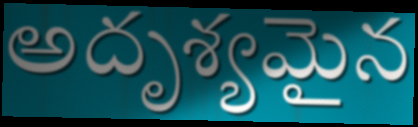
అదృశ్యమైన